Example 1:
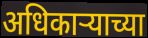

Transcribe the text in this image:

अधिकाऱ्याच्या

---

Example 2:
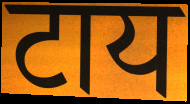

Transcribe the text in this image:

टाय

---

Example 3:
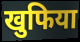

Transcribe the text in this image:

खुफिया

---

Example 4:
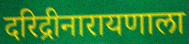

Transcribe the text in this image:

दरिद्रीनारायणाला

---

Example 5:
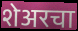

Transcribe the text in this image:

शेअरचा